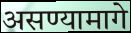
असण्यामागे